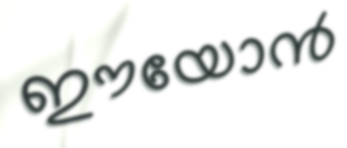
ഈയോൻ